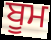
ਬੂਮ